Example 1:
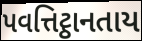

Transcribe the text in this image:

પવત્તિટ્ઠાનતાય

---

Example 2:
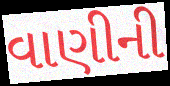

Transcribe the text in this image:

વાણીની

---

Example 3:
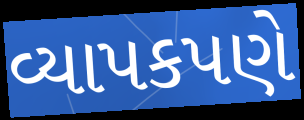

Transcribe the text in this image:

વ્યાપકપણે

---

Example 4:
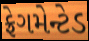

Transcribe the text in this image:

ફ્રેગમેન્ટેડ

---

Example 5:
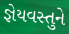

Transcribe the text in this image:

જ્ઞેયવસ્તુને